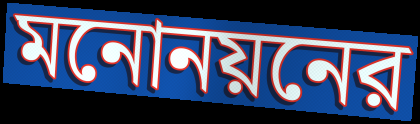
মনোনয়নের